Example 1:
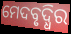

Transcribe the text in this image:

ମେଦବୃଦ୍ଧିର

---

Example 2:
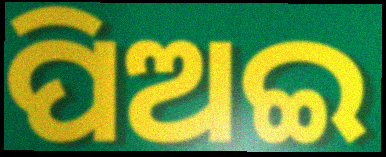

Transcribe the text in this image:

ପିଅଇ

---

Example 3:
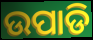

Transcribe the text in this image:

ଉପାଡି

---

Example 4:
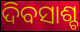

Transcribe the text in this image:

ଦିବସାଶ୍ଚ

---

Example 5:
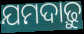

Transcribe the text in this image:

ଯମଦାଢ଼ୁ